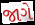
જાગે